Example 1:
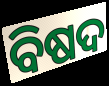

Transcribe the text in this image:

ବିଷଦ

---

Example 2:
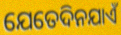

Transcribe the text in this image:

ଯେତେଦିନଯାଏଁ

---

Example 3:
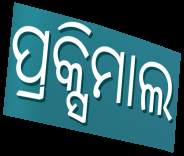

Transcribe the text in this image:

ପ୍ରକ୍ସିମାଲ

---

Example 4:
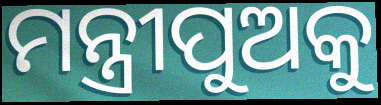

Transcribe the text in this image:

ମନ୍ତ୍ରୀପୁଅକୁ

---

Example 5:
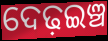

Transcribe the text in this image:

ଦେଢ଼ଇଞ୍ଚ